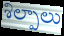
శిల్పాలు